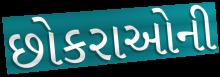
છોકરાઓની